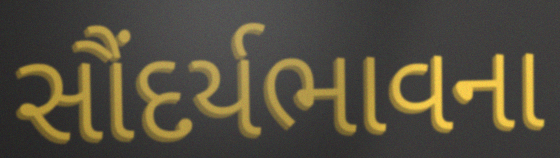
સૌંદર્યભાવના